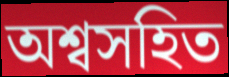
অশ্বসহিত